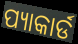
ପ୍ୟାକାର୍ଡ